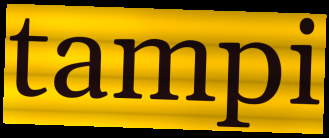
tampi